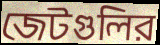
জেটগুলির